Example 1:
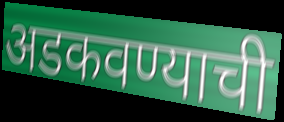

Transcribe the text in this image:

अडकवण्याची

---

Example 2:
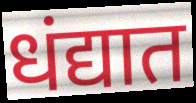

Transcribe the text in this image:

धंद्यात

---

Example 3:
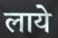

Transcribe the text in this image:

लाये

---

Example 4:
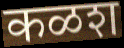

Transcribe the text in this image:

कळश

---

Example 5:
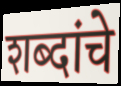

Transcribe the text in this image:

शब्दांचे